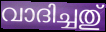
വാദിച്ചതു്